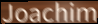
Joachim